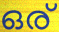
ഒര്